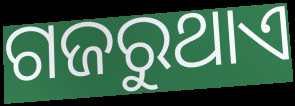
ଗଜରୁଥାଏ